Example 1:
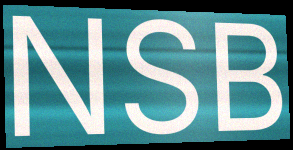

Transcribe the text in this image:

NSB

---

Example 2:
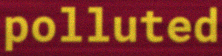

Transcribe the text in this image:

polluted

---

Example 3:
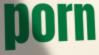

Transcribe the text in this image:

porn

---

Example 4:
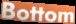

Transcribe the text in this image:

Bottom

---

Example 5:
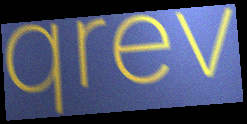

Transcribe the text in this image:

qrev